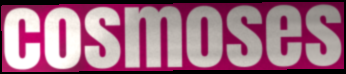
cosmoses